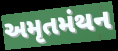
અમૃતમંથન